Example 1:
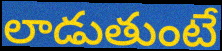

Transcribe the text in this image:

లాడుతుంటే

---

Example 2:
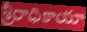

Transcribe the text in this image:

శ్రీరాధికాయా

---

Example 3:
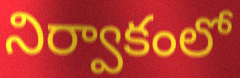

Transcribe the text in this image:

నిర్వాకంలో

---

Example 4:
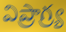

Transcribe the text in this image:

విప్రాగ్ర్య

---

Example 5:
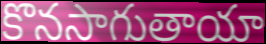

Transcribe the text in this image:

కొనసాగుతాయా